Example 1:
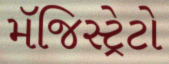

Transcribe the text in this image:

મૅજિસ્ટ્રેટો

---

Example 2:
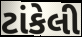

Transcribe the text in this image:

ટાંકેલી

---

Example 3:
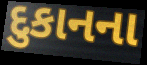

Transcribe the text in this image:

દુકાનના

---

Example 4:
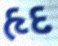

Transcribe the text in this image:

હૃદ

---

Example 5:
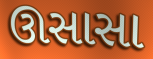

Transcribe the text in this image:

ઊસાસા